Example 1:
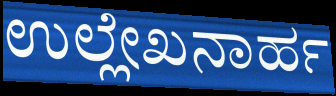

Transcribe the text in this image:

ಉಲ್ಲೇಖನಾರ್ಹ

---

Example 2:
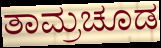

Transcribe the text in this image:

ತಾಮ್ರಚೂಡ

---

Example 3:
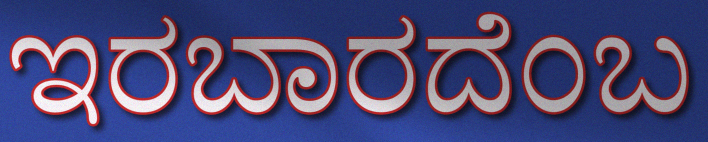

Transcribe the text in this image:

ಇರಬಾರದೆಂಬ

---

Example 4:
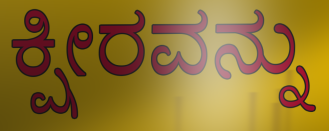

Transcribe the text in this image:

ಕ್ಷೀರವನ್ನು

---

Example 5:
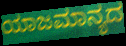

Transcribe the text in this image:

ಯಾಜಮಾನ್ಯದ